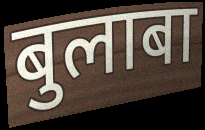
बुलाबा